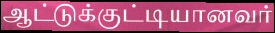
ஆட்டுக்குட்டியானவர்